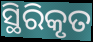
ସ୍ଥିରିକୃତ